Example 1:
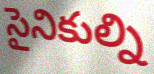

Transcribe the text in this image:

సైనికుల్ని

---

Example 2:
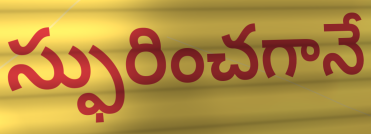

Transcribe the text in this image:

స్ఫురించగానే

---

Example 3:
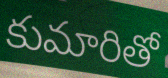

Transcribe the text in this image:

కుమారితో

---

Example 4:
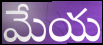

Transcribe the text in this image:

మేయ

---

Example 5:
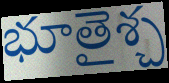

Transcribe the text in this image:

భూతైశ్చ